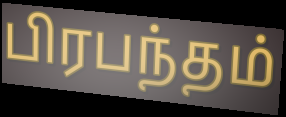
பிரபந்தம்